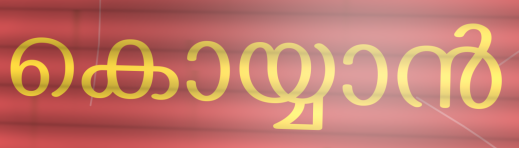
കൊയ്യാൻ